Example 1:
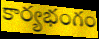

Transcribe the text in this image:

కార్యభంగం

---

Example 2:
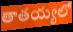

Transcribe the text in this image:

తాతయ్యలో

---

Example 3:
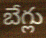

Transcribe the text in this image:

బేగ్లు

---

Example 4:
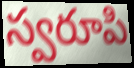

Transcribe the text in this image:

స్వరూపి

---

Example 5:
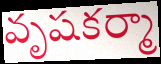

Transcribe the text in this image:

వృషకర్మా